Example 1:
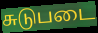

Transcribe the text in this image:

சுடுபடை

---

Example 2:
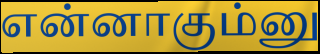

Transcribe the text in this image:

என்னாகும்னு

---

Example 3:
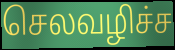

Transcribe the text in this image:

செலவழிச்ச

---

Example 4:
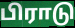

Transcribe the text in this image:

பிராடு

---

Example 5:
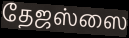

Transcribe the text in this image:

தேஜஸ்ஸை